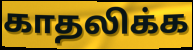
காதலிக்க